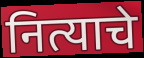
नित्याचे